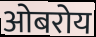
ओबरोय